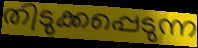
തിടുക്കപ്പെടുന്ന